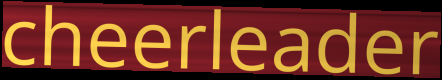
cheerleader